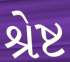
શ્રેષ્ટ